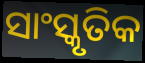
ସାଂସ୍କୃତିକ